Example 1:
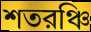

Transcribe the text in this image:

শতরঞ্চি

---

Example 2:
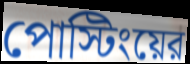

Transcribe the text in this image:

পোস্টিংয়ের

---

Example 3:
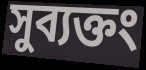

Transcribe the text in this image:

সুব্যক্তং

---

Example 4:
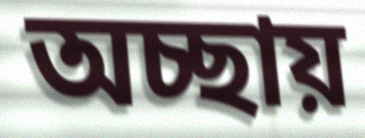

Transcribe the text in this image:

অচ্ছায়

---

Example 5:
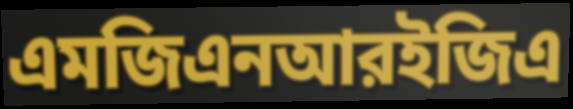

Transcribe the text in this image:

এমজিএনআরইজিএ